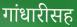
गांधारीसह